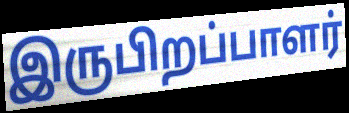
இருபிறப்பாளர்